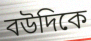
বউদিকে